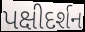
પક્ષીદર્શન